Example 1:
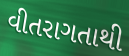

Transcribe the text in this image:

વીતરાગતાથી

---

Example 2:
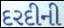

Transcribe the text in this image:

દરદીની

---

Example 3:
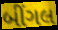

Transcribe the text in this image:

બીંગલ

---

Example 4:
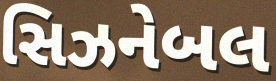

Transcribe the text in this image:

સિઝનેબલ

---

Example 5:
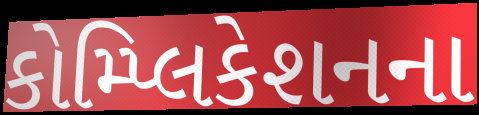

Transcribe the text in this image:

કોમ્પ્લિકેશનના